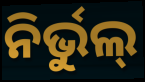
ନିର୍ଭୁଲ୍